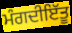
ਮੰਗਦੀਇੱਤੂ